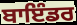
ਬਾਇੰਡਰ